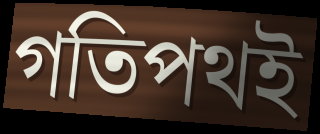
গতিপথই